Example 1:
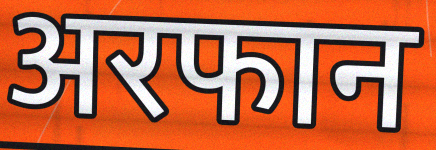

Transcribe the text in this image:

अरफान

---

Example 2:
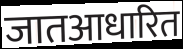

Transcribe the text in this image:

जातआधारित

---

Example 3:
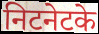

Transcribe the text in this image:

निटनेटके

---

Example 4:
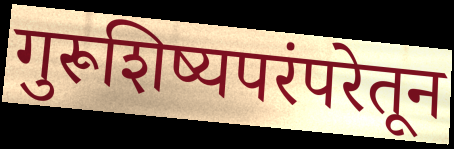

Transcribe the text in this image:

गुरूशिष्यपरंपरेतून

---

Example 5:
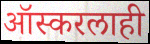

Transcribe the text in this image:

ऑस्करलाही